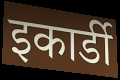
इकार्डी